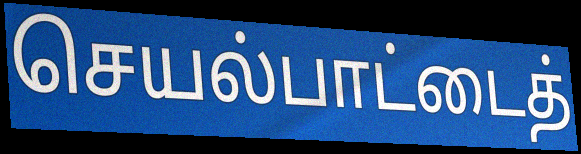
செயல்பாட்டைத்